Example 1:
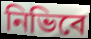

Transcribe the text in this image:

নিভিবে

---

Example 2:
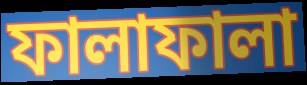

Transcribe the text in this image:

ফালাফালা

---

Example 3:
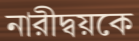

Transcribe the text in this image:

নারীদ্বয়কে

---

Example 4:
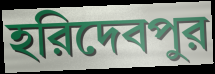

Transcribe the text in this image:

হরিদেবপুর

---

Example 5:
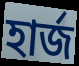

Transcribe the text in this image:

হার্জ